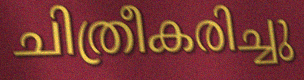
ചിത്രീകരിച്ചു